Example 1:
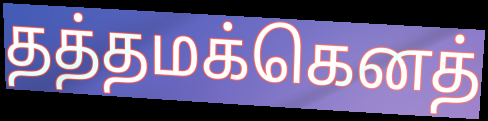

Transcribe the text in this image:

தத்தமக்கெனத்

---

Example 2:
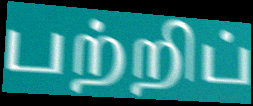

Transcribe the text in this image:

பற்றிப்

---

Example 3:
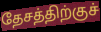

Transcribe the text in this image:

தேசத்திற்குச்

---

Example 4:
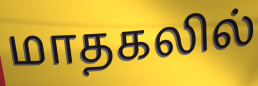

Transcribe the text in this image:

மாதகலில்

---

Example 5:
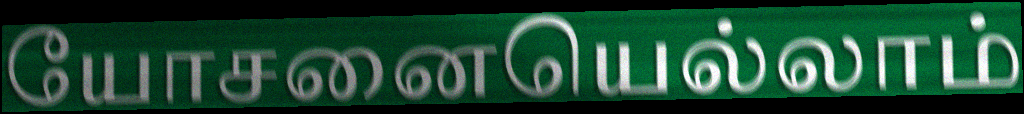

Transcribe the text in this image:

யோசனையெல்லாம்